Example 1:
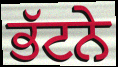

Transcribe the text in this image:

ਭੱਟਨੇ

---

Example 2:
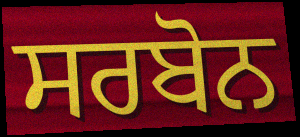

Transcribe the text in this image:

ਸਰਬੋਨ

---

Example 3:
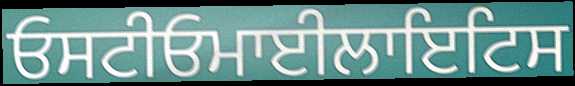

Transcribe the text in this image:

ਓਸਟੀਓਮਾਈਲਾਇਟਿਸ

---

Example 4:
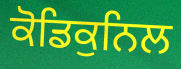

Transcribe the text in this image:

ਕੋਡਿਕੁਨਿਲ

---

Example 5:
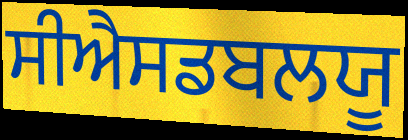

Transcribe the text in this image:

ਸੀਐਸਡਬਲਯੂ